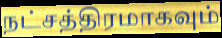
நட்சத்திரமாகவும்